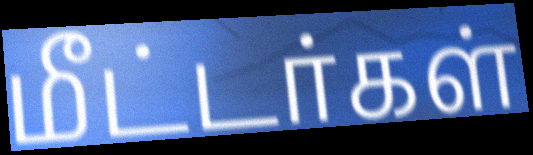
மீட்டர்கள்